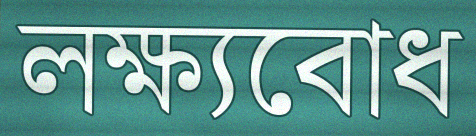
লক্ষ্যবোধ